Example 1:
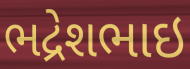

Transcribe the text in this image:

ભદ્રેશભાઇ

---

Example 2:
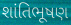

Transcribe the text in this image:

શાંતિભૂષણ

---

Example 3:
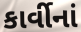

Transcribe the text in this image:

કાર્વીનાં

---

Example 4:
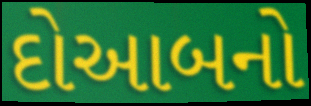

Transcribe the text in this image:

દોઆબનો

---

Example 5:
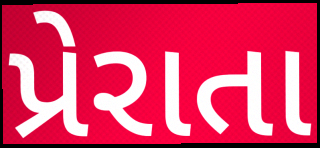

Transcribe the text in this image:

પ્રેરાતા